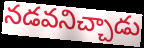
నడవనిచ్చాడు